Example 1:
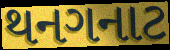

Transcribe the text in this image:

થનગનાટ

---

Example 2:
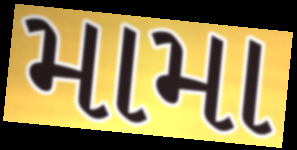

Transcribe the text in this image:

મામા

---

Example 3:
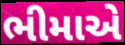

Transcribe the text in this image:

ભીમાએ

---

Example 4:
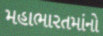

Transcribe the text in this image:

મહાભારતમાંનો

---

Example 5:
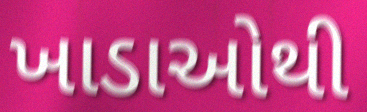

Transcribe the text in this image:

ખાડાઓથી